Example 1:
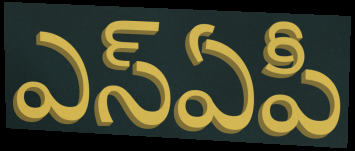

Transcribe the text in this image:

ఎస్ఏపీ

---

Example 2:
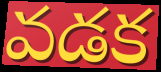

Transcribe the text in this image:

వడక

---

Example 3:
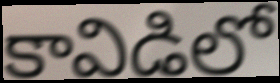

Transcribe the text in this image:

కావిడిలో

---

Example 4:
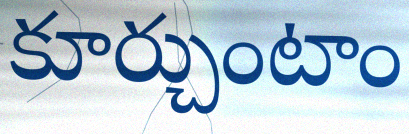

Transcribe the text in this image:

కూర్చుంటాం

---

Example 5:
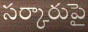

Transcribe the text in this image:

సర్కారుపై